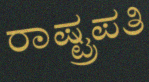
ರಾಷ್ಟ್ರಪತಿ